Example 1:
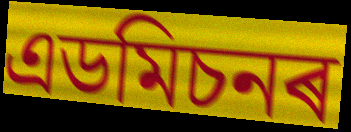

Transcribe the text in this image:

এডমিচনৰ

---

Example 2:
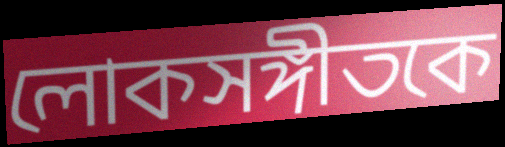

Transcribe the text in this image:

লোকসঙ্গীতকে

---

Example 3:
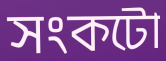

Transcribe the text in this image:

সংকটো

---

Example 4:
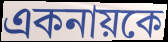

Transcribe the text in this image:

একনায়কে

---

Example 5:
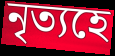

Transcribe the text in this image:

নৃত্যহে